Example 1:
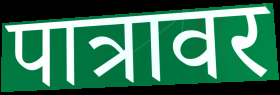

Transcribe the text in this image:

पात्रावर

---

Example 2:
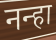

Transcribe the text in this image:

नन्हा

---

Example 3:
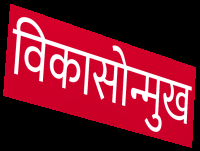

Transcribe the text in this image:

विकासोन्मुख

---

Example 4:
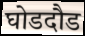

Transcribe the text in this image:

घोडदौड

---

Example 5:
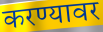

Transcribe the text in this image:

करण्यावर